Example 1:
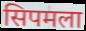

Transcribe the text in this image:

सिपमला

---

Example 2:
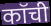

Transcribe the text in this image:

कॉची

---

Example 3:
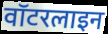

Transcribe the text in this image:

वॉटरलाइन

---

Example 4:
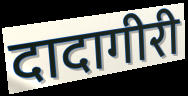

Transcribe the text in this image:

दादागीरी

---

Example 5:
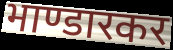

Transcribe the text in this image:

भाण्डारकर